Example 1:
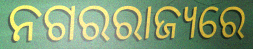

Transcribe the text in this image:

ନଗରରାଜ୍ୟରେ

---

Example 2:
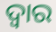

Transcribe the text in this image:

ଦ୍ୱାର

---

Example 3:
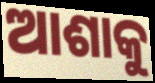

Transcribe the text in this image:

ଆଶାକୁ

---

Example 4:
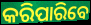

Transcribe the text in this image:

କରିପାରିବେ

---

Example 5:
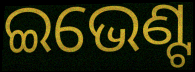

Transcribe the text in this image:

ଇଭେଣ୍ଟ